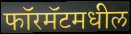
फॉरमॅटमधील